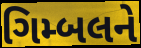
ગિમ્બલને